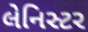
લેનિસ્ટર